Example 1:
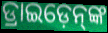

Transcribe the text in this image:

ଡ୍ରାଇଡ଼େନ୍‌ଙ୍କ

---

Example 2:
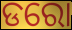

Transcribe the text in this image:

ଡରୋ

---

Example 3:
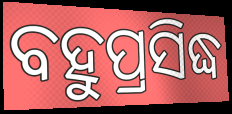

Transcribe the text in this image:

ବହୁପ୍ରସିଦ୍ଧ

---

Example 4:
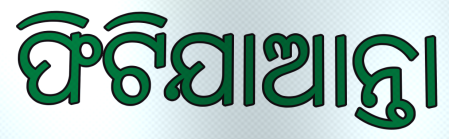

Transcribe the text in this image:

ଫିଟିଯାଆନ୍ତା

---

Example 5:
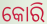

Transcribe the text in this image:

କୋରି